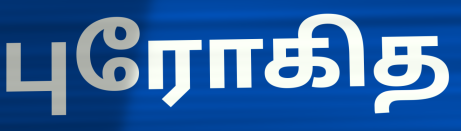
புரோகித